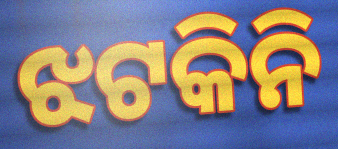
ଝଟକିନି